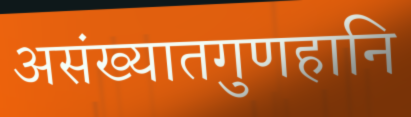
असंख्यातगुणहानि